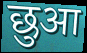
छुआ